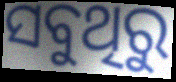
ସବୁଥିରୁ